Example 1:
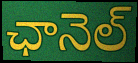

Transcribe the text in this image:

ఛానెల్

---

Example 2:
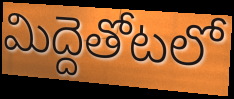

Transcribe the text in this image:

మిద్దెతోటలో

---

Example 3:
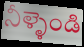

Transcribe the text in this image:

నీళ్ళెండి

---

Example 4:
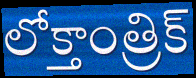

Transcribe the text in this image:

లోక్తాంత్రిక్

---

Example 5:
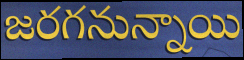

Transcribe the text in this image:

జరగనున్నాయి